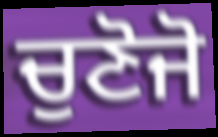
ਚੁਣੋਜੋ